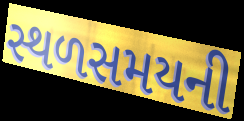
સ્થળસમયની